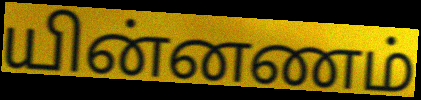
யின்னணம்